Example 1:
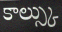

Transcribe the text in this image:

కాల్స్కు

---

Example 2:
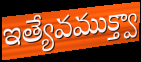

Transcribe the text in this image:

ఇత్యేవముక్త్వా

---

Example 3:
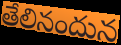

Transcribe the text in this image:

తేలినందున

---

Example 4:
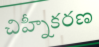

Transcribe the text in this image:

చిహ్నీకరణ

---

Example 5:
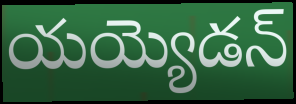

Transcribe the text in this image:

యయ్యెడన్